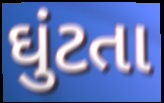
ઘુંટતા